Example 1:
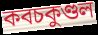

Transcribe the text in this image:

কবচকুণ্ডল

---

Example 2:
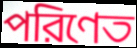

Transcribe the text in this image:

পরিণেত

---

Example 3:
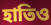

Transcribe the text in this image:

হাতিও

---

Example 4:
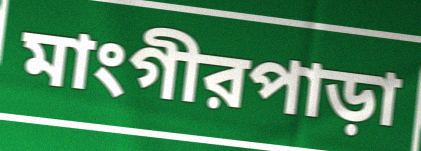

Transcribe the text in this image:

মাংগীরপাড়া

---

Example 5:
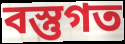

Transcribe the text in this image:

বস্তুগত